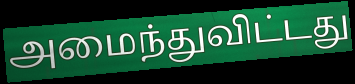
அமைந்துவிட்டது